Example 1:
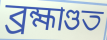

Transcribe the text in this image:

ব্ৰহ্মাণ্ডত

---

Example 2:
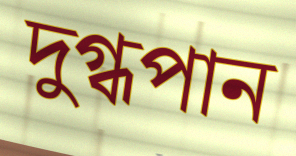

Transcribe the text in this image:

দুগ্ধপান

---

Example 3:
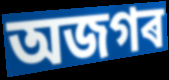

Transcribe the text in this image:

অজগৰ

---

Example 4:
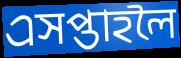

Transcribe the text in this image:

এসপ্তাহলৈ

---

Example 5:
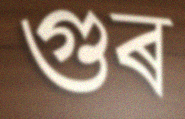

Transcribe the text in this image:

গুৰ